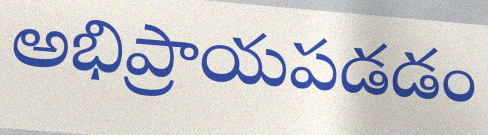
అభిప్రాయపడడం